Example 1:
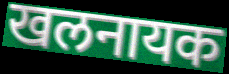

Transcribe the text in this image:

खलनायक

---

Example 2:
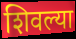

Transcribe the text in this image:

शिवल्या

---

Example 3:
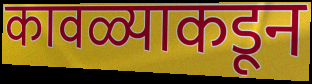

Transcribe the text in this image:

कावळ्याकडून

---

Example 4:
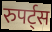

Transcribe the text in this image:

रुपर्ट्स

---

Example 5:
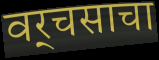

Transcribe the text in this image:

वर्चसाचा